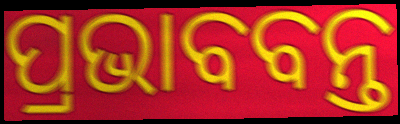
ପ୍ରଭାବବନ୍ତ